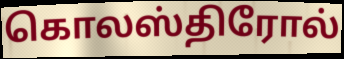
கொலஸ்திரோல்